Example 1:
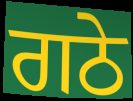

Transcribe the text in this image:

ਗਠੇ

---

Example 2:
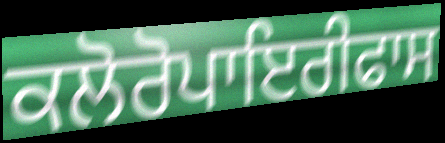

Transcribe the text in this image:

ਕਲੋਰੋਪਾਇਰੀਫਾਸ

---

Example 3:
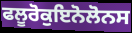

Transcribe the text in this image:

ਫਲੂਰੋਕੁਇਨੋਲੋਨਸ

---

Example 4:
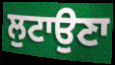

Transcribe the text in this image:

ਲੁਟਾਉਣਾ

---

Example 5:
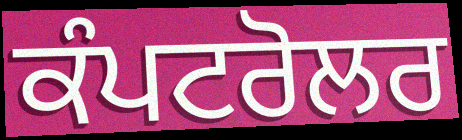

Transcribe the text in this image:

ਕੰਪਟਰੋਲਰ